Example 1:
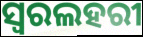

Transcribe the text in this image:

ସ୍ୱରଲହରୀ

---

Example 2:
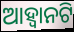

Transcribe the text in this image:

ଆହ୍ଵାନଟି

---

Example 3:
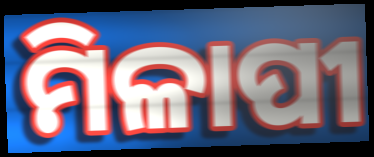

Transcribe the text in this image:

ମିଳାପୀ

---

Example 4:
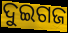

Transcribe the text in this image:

ଦୁଇଗଜ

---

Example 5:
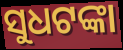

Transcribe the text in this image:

ସୁଧଟଙ୍କା